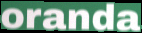
oranda